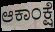
ಆಕಾಂಕ್ಷೆ